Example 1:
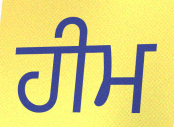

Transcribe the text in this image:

ਹੀਮ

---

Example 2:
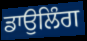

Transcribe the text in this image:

ਡਾਉਲਿੰਗ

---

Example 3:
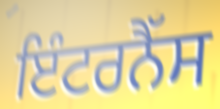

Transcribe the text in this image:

ਇੰਟਰਨੈੱਸ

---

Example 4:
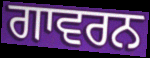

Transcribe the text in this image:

ਗਾਵਰਨ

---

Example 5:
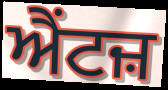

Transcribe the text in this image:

ਐਂਟਜ਼